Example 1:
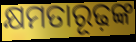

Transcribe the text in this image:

କ୍ଷମତାରୂଢ଼ଙ୍କ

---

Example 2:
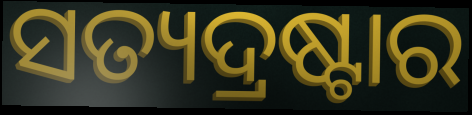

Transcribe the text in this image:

ସତ୍ୟଦ୍ରଷ୍ଟାର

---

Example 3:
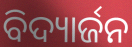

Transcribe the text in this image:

ବିଦ୍ୟାର୍ଜନ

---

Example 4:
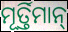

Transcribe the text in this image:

ମୂର୍ତ୍ତିମାନ୍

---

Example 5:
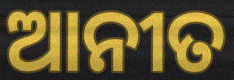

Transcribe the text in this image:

ଆନୀତ